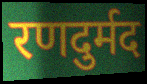
रणदुर्मद